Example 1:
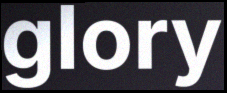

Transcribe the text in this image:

glory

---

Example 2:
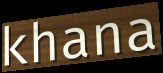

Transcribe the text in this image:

khana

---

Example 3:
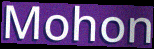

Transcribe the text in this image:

Mohon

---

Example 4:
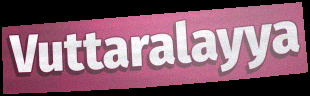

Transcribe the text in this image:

Vuttaralayya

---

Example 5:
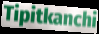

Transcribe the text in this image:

Tipitkanchi